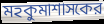
মহকুমাশাসকের